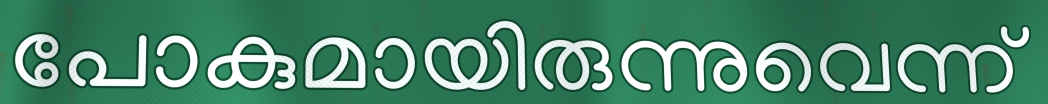
പോകുമായിരുന്നുവെന്ന്